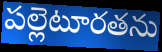
పల్లెటూరతను